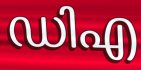
ഡിഎ